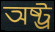
অষ্ট্ৰ